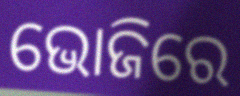
ଭୋଜିରେ